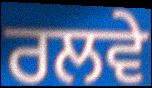
ਰਲਵੇ